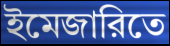
ইমেজারিতে